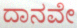
ದಾನವೇ